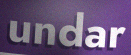
undar